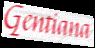
Gentiana